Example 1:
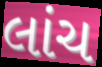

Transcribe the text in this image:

લાંચ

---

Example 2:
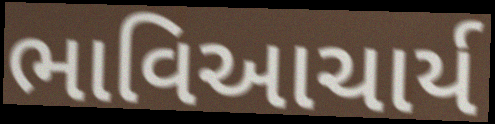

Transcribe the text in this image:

ભાવિઆચાર્ય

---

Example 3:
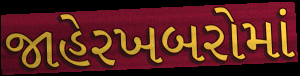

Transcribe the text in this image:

જાહેરખબરોમાં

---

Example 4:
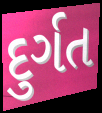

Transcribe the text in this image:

દુર્ગત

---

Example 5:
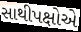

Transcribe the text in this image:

સાથીપક્ષોએ